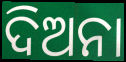
ଦିଅନା